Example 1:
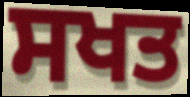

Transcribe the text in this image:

ਸਖਤ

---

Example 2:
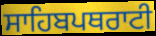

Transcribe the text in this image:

ਸਾਹਿਬਪਥਰਾਟੀ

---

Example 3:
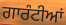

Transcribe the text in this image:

ਗਾਰੰਟੀਆਂ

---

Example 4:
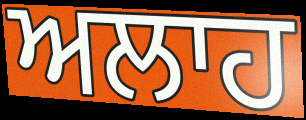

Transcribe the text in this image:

ਅਲਾਹ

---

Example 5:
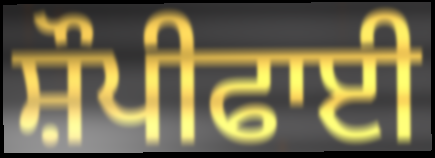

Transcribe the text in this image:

ਸ਼ੌਪੀਫਾਈ